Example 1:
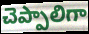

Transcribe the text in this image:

చెప్పాలిగా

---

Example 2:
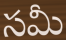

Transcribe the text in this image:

సమీ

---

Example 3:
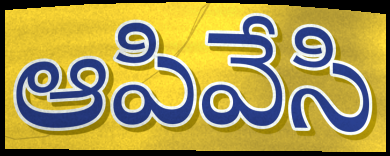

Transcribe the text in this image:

ఆపివేసి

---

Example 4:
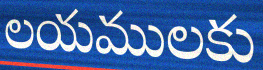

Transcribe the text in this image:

లయములకు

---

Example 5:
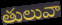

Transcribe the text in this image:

తులువా